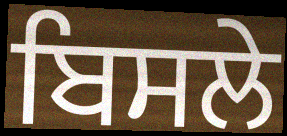
ਬਿਸਲੇ